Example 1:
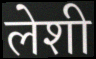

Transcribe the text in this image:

लेशी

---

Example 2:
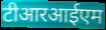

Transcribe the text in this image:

टीआरआईएम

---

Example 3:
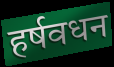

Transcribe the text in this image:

हर्षवधन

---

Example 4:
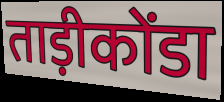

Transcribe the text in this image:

ताड़ीकोंडा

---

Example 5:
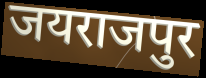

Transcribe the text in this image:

जयराजपुर